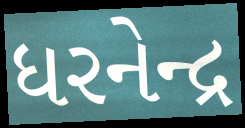
ધરનેન્દ્ર